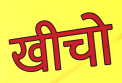
खीचो